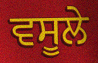
ਵਸੂਲੇ